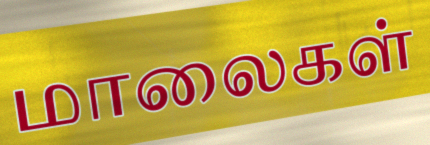
மாலைகள்